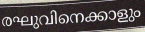
രഘുവിനെക്കാളും